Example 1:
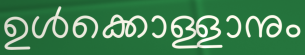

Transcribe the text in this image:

ഉൾക്കൊള്ളാനും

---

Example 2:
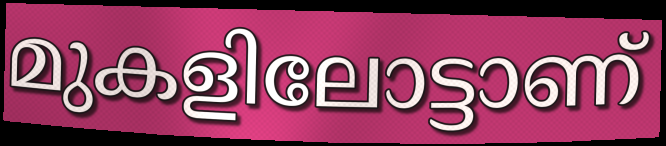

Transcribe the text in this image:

മുകളിലോട്ടാണ്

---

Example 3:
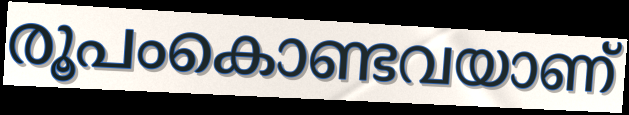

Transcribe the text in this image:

രൂപംകൊണ്ടവയാണ്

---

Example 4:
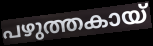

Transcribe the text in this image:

പഴുത്തകായ്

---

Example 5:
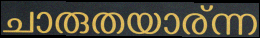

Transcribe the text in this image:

ചാരുതയാര്ന്ന